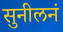
सुनीलनं